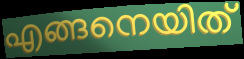
എങ്ങനെയിത്